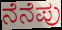
ನೆನೆಪು